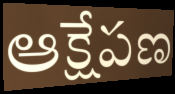
ఆక్షేపణ